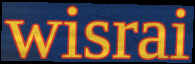
wisrai